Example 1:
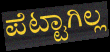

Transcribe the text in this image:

ಪೆಟ್ಟಾಗಿಲ್ಲ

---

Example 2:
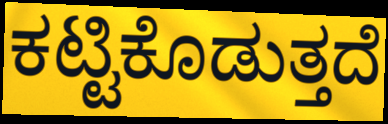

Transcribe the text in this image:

ಕಟ್ಟಿಕೊಡುತ್ತದೆ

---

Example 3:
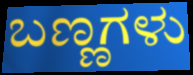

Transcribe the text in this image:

ಬಣ್ಣಗಳು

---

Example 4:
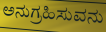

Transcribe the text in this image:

ಅನುಗ್ರಹಿಸುವನು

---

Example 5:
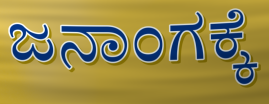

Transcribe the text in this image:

ಜನಾಂಗಕ್ಕೆ